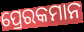
ପ୍ରେରକମାନ